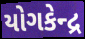
યોગકેન્દ્ર